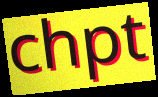
chpt